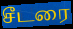
சீடரை